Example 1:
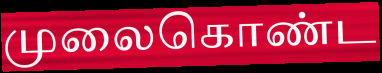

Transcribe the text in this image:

முலைகொண்ட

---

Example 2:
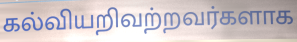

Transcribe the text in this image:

கல்வியறிவற்றவர்களாக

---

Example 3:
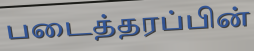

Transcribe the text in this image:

படைத்தரப்பின்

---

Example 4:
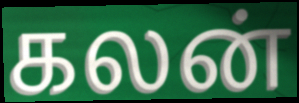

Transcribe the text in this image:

கலன்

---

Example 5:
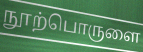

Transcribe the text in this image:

நூற்பொருளை